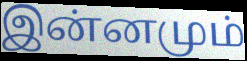
இன்னமும்